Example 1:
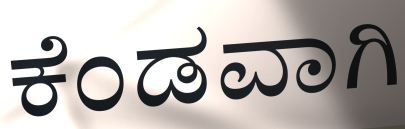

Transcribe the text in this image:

ಕೆಂಡವಾಗಿ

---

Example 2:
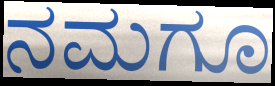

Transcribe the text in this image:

ನಮಗೂ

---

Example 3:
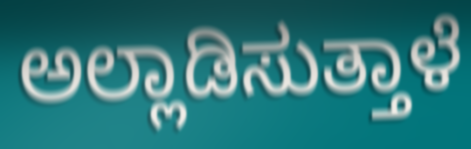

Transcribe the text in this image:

ಅಲ್ಲಾಡಿಸುತ್ತಾಳೆ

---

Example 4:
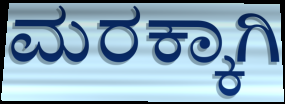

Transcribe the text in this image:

ಮರಕ್ಕಾಗಿ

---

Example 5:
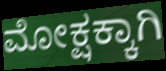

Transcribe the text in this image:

ಮೋಕ್ಷಕ್ಕಾಗಿ